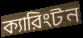
ক্যারিংটন